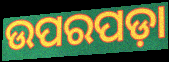
ଉପରପଡ଼ା